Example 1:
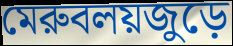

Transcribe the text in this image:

মেরুবলয়জুড়ে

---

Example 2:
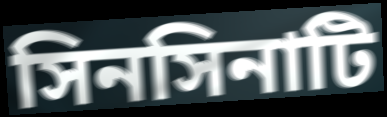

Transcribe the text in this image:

সিনসিনাটি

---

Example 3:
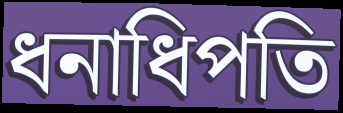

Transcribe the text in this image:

ধনাধিপতি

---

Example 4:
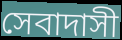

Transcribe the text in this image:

সেবাদাসী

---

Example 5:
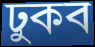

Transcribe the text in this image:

ঢুকব